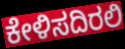
ಕೇಳಿಸದಿರಲಿ